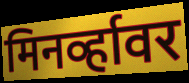
मिनर्व्हावर